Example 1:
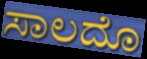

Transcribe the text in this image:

ಸಾಲದೊ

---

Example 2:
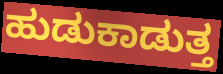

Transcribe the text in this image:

ಹುಡುಕಾಡುತ್ತ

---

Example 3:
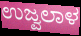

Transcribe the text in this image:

ಉಜ್ವಲಾಳ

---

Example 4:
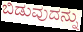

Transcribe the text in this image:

ಬಿಡುವುದನ್ನು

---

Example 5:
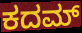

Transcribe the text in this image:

ಕದಮ್